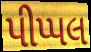
પીપ્પલ